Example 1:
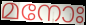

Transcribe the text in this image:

മനോഃ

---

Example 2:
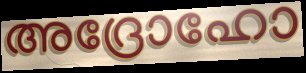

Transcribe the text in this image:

അദ്രോഹോ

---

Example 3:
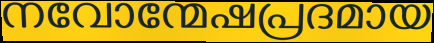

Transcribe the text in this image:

നവോന്മേഷപ്രദമായ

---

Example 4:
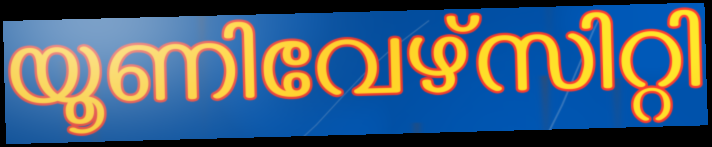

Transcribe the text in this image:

യൂണിവേഴ്സിറ്റി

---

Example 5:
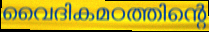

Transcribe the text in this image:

വൈദികമഠത്തിന്റെ